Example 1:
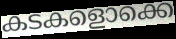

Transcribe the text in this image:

കടകളൊക്കെ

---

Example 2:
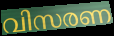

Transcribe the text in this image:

വിസരണ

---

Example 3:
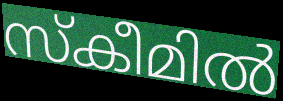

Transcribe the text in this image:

സ്കീമിൽ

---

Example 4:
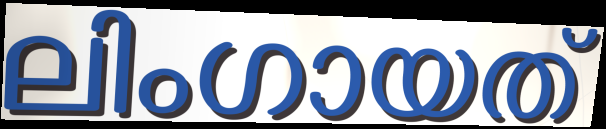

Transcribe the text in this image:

ലിംഗായത്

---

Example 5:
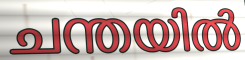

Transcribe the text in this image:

ചന്തയിൽ